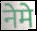
नेमे